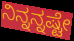
ನಿನ್ನನ್ನಷ್ಟೇ